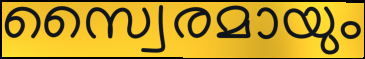
സ്വൈരമായും